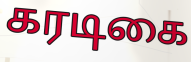
கரடிகை